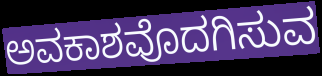
ಅವಕಾಶವೊದಗಿಸುವ